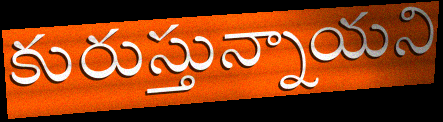
కురుస్తున్నాయని